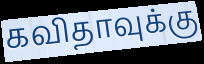
கவிதாவுக்கு